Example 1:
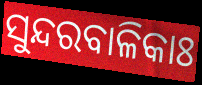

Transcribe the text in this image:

ସୁନ୍ଦରବାଳିକାଃ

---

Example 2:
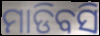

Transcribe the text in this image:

ମାଡିବସି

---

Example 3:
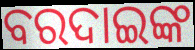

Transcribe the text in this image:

ବରଦାଇଙ୍କ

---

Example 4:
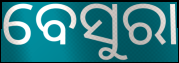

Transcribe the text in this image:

ବେସୁରା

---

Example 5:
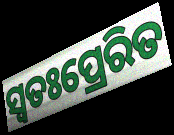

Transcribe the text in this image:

ସ୍ୱତଃପ୍ରେରିତ